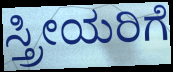
ಸ್ತ್ರೀಯರಿಗೆ